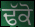
ਢੱਕੋ